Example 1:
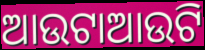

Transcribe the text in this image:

ଆଉଟାଆଉଟି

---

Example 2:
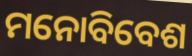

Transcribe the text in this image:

ମନୋବିବେଶ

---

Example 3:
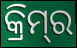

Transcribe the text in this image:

କ୍ରିମ୍‌ର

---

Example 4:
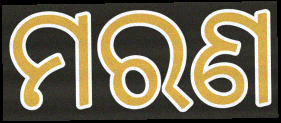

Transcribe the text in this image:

ମରଣ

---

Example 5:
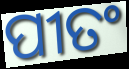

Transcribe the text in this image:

ପୀତଂ